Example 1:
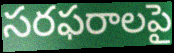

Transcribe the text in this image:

సరఫరాలపై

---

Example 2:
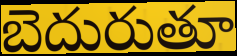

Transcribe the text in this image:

బెదురుతూ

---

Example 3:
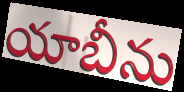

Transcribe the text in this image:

యాబీను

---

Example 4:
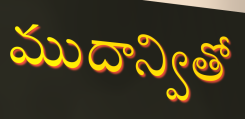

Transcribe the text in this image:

ముదాన్వితో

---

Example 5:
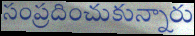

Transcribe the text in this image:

సంప్రదించుకున్నారు